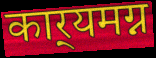
कार्यमग्न